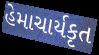
હેમાચાર્યકૃત